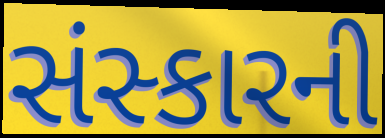
સંસ્કારની